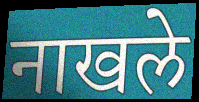
नाखले